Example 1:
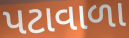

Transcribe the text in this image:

પટાવાળા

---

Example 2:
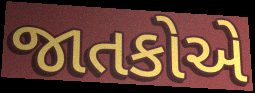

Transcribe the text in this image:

જાતકોએ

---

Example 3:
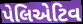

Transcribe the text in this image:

પેલિએટિવ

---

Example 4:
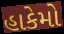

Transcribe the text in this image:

હાકેમો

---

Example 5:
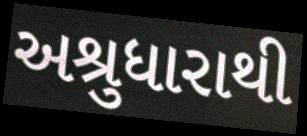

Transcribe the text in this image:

અશ્રુધારાથી